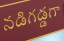
నడిగడ్డగా